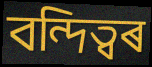
বন্দিত্বৰ